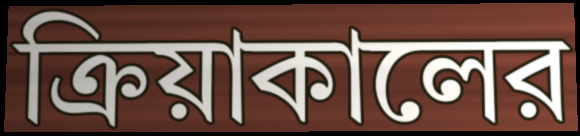
ক্রিয়াকালের